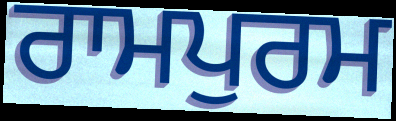
ਰਾਮਪੁਰਮ